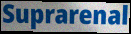
Suprarenal